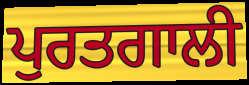
ਪੁਰਤਗਾਲੀ